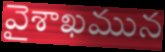
వైశాఖమున